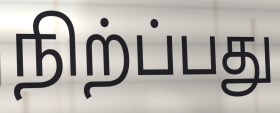
நிற்ப்பது